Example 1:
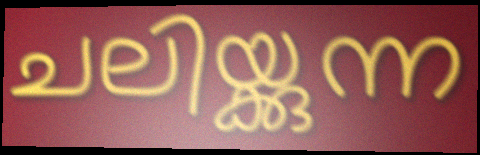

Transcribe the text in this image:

ചലിയ്ക്കുന്ന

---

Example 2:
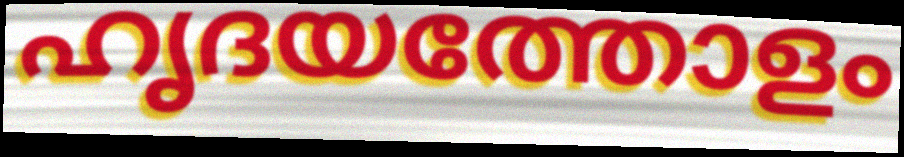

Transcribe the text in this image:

ഹൃദയത്തോളം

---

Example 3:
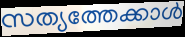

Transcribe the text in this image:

സത്യത്തേക്കാൾ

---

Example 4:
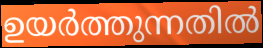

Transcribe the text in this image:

ഉയർത്തുന്നതിൽ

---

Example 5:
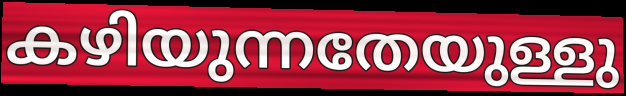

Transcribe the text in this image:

കഴിയുന്നതേയുള്ളു